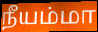
நீயம்மா